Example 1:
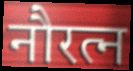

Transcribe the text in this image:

नौरत्न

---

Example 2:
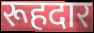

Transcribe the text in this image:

रूहदार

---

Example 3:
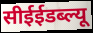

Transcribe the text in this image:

सीईईडब्ल्यू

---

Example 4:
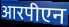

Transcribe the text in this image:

आरपीएन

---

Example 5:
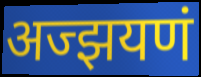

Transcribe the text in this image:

अज्झयणं